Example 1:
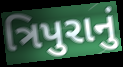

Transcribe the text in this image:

ત્રિપુરાનું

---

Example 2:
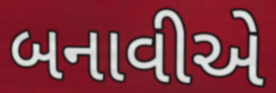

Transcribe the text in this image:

બનાવીએ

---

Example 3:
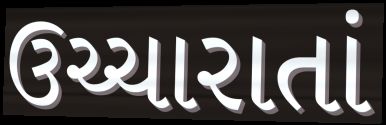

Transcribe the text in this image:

ઉચ્ચારાતાં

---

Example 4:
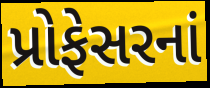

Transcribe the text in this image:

પ્રોફેસરનાં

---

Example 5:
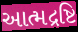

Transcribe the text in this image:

આત્મદ્રષ્ટિ